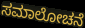
ಸಮಾಲೋಚನೆ